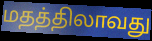
மதத்திலாவது